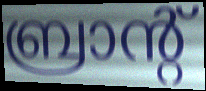
ബ്രാന്റ്